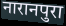
नारानपुरा